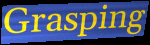
Grasping